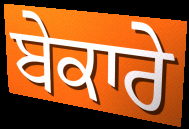
ਬੇਕਾਰੇ